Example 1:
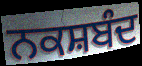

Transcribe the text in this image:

ਨਕਸ਼ਬੰਦ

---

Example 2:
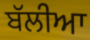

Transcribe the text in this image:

ਬੱਲੀਆ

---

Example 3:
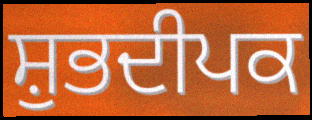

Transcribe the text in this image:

ਸ਼ੁਭਦੀਪਕ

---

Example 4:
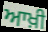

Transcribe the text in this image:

ਆਖ਼ੀ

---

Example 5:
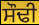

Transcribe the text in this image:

ਸੌਢੀ